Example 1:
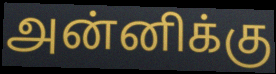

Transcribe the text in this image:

அன்னிக்கு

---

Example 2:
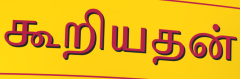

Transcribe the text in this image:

கூறியதன்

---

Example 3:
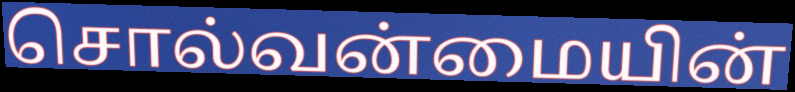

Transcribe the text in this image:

சொல்வன்மையின்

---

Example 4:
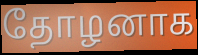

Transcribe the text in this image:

தோழனாக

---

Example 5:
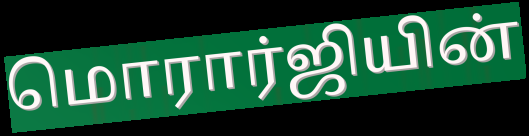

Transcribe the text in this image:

மொரார்ஜியின்